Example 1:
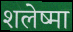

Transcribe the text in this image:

शलेष्मा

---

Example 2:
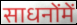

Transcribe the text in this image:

साधनोंमें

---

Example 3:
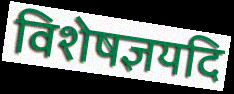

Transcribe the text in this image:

विशेषज्ञयदि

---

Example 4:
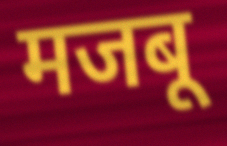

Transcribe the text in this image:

मजबू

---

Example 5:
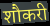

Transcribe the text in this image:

शौकरी